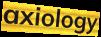
axiology